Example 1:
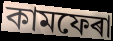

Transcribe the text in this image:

কামফেৰা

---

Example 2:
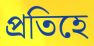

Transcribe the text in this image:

প্ৰতিহে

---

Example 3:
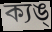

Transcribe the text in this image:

ক্যঙ্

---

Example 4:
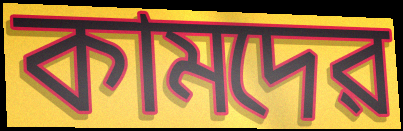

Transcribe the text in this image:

কামদেৱ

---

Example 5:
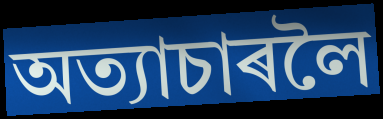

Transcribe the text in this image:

অত্যাচাৰলৈ